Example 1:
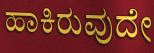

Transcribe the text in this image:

ಹಾಕಿರುವುದೇ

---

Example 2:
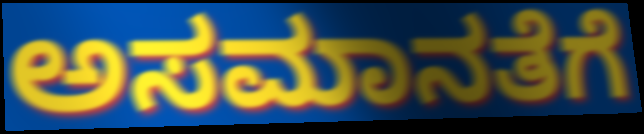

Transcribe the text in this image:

ಅಸಮಾನತೆಗೆ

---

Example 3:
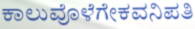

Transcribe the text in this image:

ಕಾಲುವೊಳೆಗೇಕವನಿಪತಿ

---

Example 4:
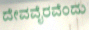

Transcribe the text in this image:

ದೇವವೈರವೆಂದು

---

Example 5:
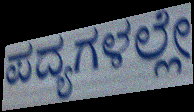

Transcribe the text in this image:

ಪದ್ಯಗಳಲ್ಲೇ